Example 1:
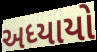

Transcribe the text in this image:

અધ્યાયો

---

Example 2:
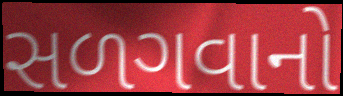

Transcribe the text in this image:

સળગવાનો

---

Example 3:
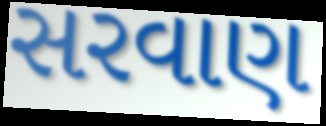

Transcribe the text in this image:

સરવાણ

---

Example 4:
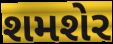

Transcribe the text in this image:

શમશેર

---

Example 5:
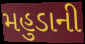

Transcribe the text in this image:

મહુડાની